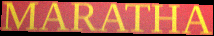
MARATHA